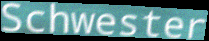
Schwester